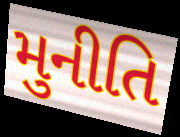
મુનીતિ